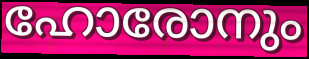
ഹോരോനും